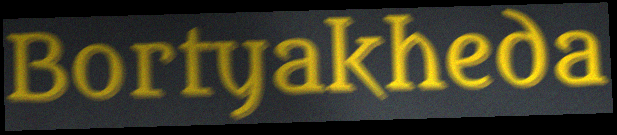
Bortyakheda